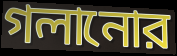
গলানোর